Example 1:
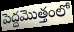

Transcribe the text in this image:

పెద్దమొత్తంలో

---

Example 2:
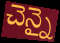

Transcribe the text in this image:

చెన్నై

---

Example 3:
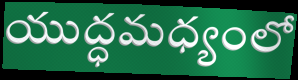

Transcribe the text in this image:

యుద్ధమధ్యంలో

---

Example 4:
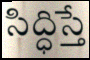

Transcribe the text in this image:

సిద్ధిస్తే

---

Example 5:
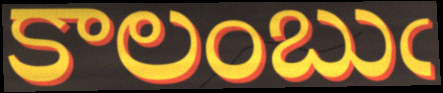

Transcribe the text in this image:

కాలంబుఁ